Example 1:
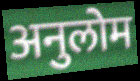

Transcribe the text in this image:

अनुलोम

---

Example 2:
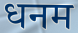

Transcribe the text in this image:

धनम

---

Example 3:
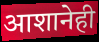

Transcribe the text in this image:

आशानेही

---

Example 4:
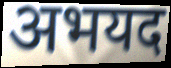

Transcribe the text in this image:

अभयद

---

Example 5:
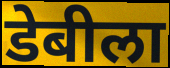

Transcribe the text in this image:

डेबीला